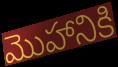
మొహానికి